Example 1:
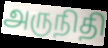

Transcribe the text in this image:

அருநிதி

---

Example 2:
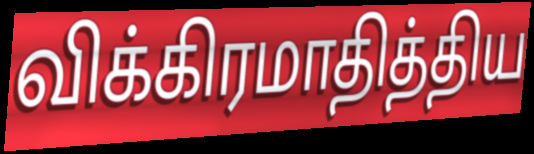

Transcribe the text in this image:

விக்கிரமாதித்திய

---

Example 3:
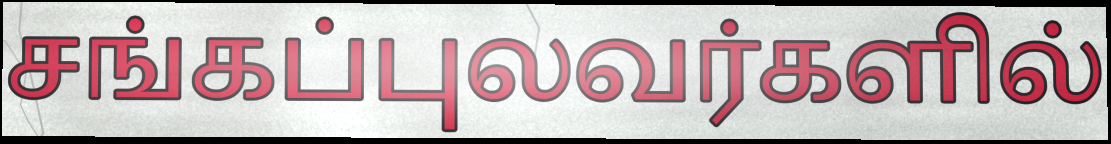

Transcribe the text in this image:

சங்கப்புலவர்களில்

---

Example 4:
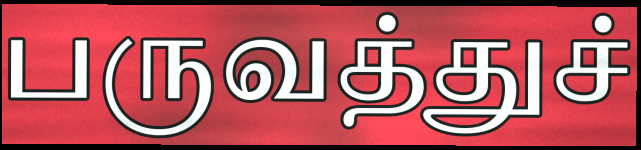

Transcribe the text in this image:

பருவத்துச்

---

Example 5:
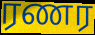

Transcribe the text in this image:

ரணர